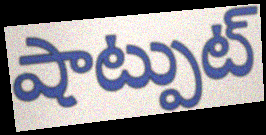
షాట్పుట్